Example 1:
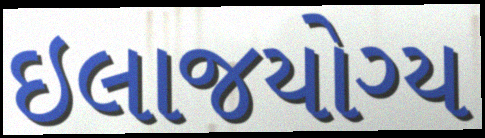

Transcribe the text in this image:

ઇલાજયોગ્ય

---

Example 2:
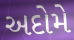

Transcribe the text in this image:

અદોમે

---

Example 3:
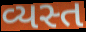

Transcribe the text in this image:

વ્યસ્ત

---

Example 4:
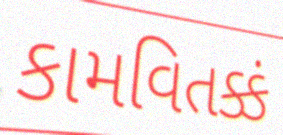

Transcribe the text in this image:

કામવિતક્કં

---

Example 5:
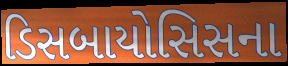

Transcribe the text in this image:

ડિસબાયોસિસના